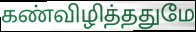
கண்விழித்ததுமே